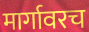
मार्गावरच